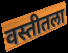
वस्तीतला